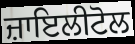
ਜ਼ਾਇਲੀਟੋਲ